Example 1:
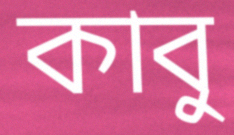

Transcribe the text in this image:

কাবু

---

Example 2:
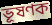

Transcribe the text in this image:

ভূষণক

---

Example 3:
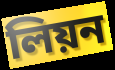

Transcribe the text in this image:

লিয়ন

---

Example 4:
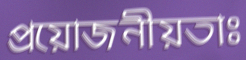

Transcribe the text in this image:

প্ৰয়োজনীয়তাঃ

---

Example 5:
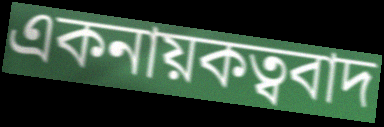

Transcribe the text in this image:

একনায়কত্ববাদ